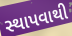
સ્થાપવાથી